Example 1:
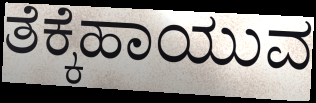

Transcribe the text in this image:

ತೆಕ್ಕೆಹಾಯುವ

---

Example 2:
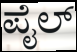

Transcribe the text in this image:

ಪೈಲ್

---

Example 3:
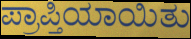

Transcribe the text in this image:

ಪ್ರಾಪ್ತಿಯಾಯಿತು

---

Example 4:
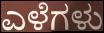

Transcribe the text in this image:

ಎಳೆಗಳು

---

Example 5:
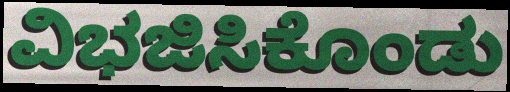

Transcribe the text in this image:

ವಿಭಜಿಸಿಕೊಂಡು